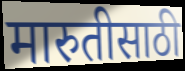
मारुतीसाठी